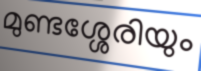
മുണ്ടശ്ശേരിയും